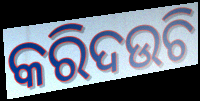
କରିଦଉଚି